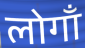
लोगाँ